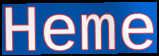
Heme